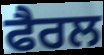
ਫੈਰਲ